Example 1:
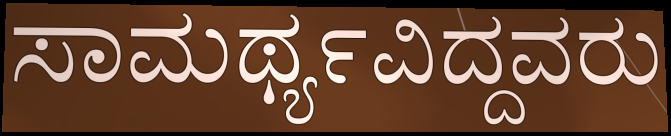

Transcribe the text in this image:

ಸಾಮರ್ಥ್ಯವಿದ್ದವರು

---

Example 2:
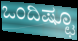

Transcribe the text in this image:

ಒಂದಿಷ್ಟೂ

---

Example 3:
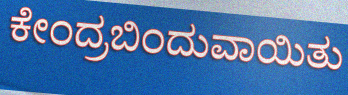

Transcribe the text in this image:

ಕೇಂದ್ರಬಿಂದುವಾಯಿತು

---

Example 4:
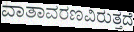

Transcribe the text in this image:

ವಾತಾವರಣವಿರುತ್ತದೆ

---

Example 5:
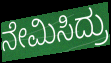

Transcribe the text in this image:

ನೇಮಿಸಿದ್ರು